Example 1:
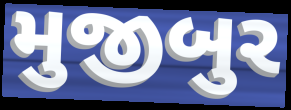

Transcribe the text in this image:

મુજીબુર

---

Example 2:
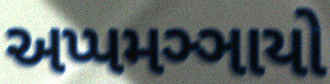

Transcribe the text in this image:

અપ્પમઞ્ઞાયો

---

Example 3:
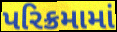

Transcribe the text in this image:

પરિક્રમામાં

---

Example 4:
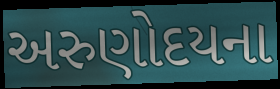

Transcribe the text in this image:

અરુણોદયના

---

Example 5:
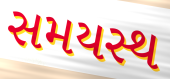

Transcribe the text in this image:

સમયસ્થ